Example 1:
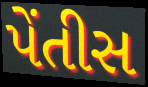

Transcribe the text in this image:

પેંતીસ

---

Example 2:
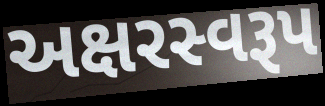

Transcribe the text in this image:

અક્ષરસ્વરૂપ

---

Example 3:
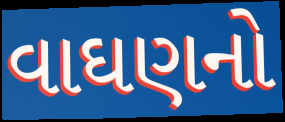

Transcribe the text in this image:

વાઘણનો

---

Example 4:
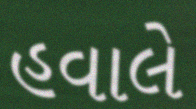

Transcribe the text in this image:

હવાલે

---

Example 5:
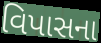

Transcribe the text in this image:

વિપાસના